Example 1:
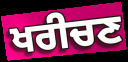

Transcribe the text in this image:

ਖਰੀਚਣ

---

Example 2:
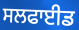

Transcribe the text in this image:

ਸਲਫਾਈਡ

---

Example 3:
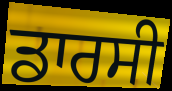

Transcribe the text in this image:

ਡਾਰਸੀ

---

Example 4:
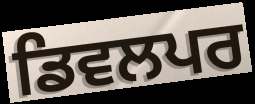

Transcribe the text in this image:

ਡਿਵਲਪਰ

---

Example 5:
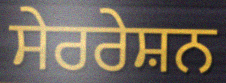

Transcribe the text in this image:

ਸੇਰਰੇਸ਼ਨ